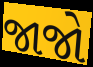
જાજો